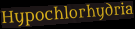
Hypochlorhydria